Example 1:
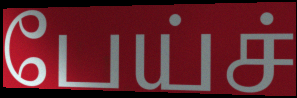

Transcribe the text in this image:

பேய்ச்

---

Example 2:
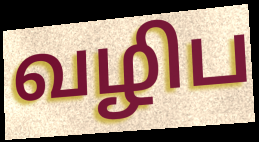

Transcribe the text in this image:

வழிப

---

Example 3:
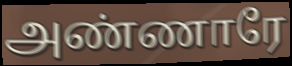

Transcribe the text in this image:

அண்ணாரே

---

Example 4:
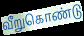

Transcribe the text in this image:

வீறுகொண்டு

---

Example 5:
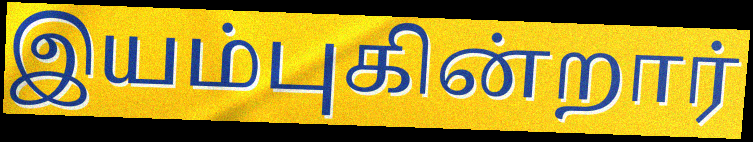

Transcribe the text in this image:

இயம்புகின்றார்